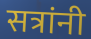
सत्रांनी